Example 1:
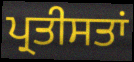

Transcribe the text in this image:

ਪ੍ਰਤੀਸਤਾਂ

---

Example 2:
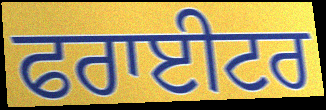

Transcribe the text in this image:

ਫਰਾਈਟਰ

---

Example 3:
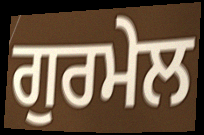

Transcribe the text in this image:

ਗੁਰਮੇਲ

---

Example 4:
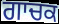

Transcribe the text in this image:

ਗਾਚਕ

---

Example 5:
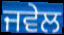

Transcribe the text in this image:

ਜਵੇਲ